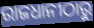
ରାଜଧାନୀଠାରୁ